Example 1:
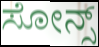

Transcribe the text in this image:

ಸೋನ್ಸ್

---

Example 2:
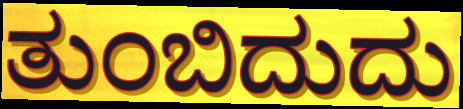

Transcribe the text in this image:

ತುಂಬಿದುದು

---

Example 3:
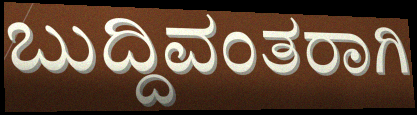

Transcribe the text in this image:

ಬುದ್ದಿವಂತರಾಗಿ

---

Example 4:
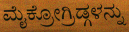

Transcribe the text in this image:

ಮೈಕ್ರೋಗ್ರಿಡ್ಗಳನ್ನು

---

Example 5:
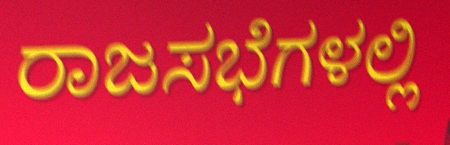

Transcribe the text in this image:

ರಾಜಸಭೆಗಳಲ್ಲಿ